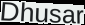
Dhusar